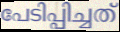
പേടിപ്പിച്ചത്